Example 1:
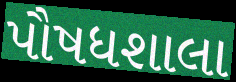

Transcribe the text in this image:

પૌષધશાલા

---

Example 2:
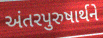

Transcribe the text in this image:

અંતરપુરુષાર્થને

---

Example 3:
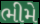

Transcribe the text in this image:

ભીમે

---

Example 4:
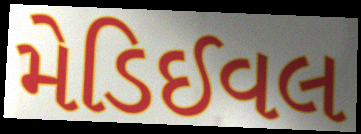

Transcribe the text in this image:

મેડિઈવલ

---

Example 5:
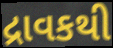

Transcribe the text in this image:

દ્રાવકથી